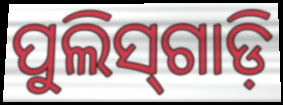
ପୁଲିସ୍‌ଗାଡ଼ି